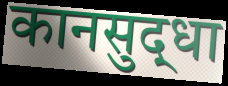
कानसुद्धा